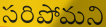
సరిపోమని